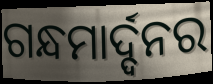
ଗନ୍ଧମାର୍ଦ୍ଦନର